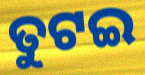
ତୁଟଇ